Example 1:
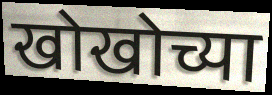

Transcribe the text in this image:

खोखोच्या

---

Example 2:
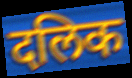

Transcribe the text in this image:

दलिक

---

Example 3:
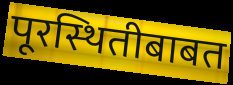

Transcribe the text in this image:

पूरस्थितीबाबत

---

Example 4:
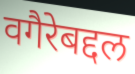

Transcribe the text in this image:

वगैरेबद्दल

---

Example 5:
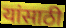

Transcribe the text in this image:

यांसाठी